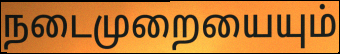
நடைமுறையையும்